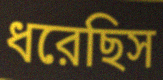
ধরেছিস